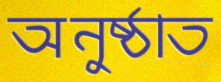
অনুষ্ঠাত